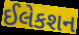
ઈલેકશન